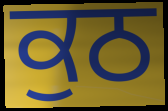
ਕੁਠ